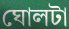
ঘোলটা